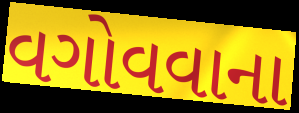
વગોવવાના